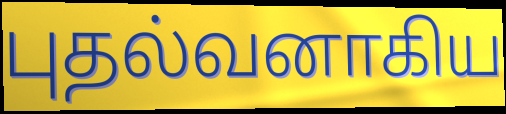
புதல்வனாகிய